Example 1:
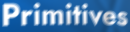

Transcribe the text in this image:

Primitives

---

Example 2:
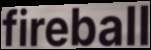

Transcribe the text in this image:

fireball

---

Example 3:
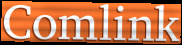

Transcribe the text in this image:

Comlink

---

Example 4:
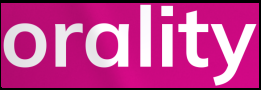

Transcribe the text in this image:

orality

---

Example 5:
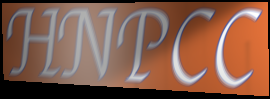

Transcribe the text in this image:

HNPCC